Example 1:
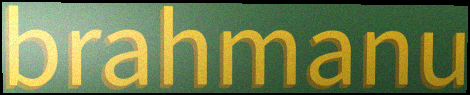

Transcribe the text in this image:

brahmanu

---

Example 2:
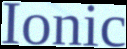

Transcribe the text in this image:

Ionic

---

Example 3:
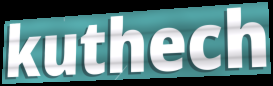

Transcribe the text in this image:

kuthech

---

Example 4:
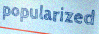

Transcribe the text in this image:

popularized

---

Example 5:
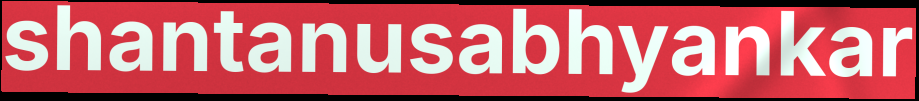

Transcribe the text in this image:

shantanusabhyankar